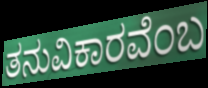
ತನುವಿಕಾರವೆಂಬ